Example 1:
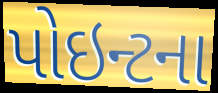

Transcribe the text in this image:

પોઇન્ટના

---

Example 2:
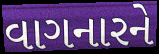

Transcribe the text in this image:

વાગનારને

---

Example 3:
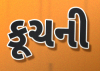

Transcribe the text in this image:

કૂચની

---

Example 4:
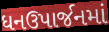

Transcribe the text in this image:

ધનઉપાર્જનમાં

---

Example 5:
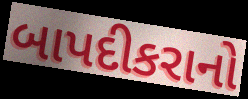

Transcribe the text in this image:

બાપદીકરાનો